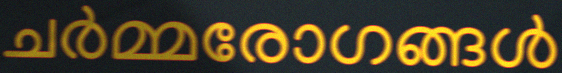
ചർമ്മരോഗങ്ങൾ